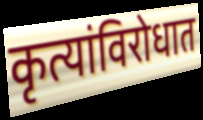
कृत्यांविरोधात